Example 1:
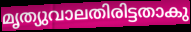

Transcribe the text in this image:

മൃത്യുവാലതിരിട്ടതാകു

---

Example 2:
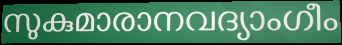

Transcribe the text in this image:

സുകുമാരാനവദ്യാംഗീം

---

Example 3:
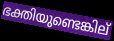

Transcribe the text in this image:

ഭക്തിയുണ്ടെങ്കില്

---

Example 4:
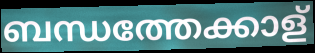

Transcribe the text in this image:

ബന്ധത്തേക്കാള്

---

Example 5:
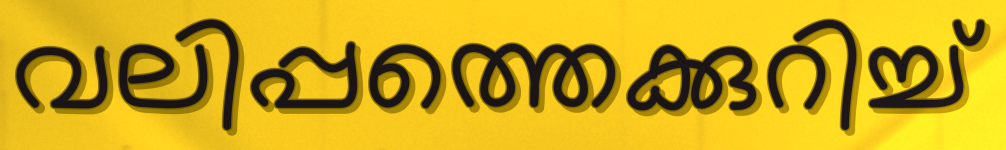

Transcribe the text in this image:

വലിപ്പത്തെക്കുറിച്ച്